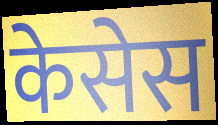
केसेस